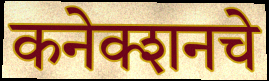
कनेक्शनचे